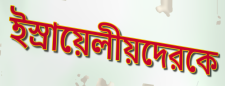
ইস্রায়েলীয়দেরকে